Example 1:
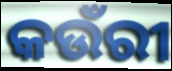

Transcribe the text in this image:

କଉଁରୀ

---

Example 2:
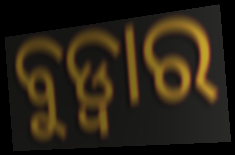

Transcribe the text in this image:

ବୁଡ୍ୱାର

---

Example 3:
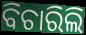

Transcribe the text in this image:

ବିଚାରିଲି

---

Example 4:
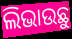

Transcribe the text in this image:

ଲିଭାଉଛୁ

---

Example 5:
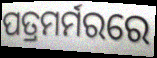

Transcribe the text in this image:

ପତ୍ରମର୍ମରରେ